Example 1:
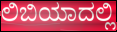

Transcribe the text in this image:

ಲಿಬಿಯಾದಲ್ಲಿ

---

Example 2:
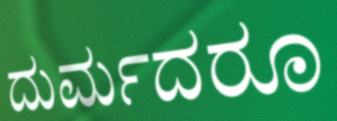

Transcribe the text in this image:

ದುರ್ಮದರೂ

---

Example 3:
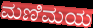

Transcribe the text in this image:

ಮಣಿಮಯ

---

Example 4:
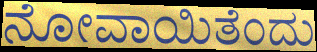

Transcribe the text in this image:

ನೋವಾಯಿತೆಂದು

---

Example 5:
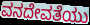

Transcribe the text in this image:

ವನದೇವತೆಯು